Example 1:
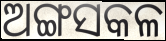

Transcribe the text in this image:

ଅଙ୍ଗସକଳ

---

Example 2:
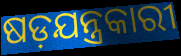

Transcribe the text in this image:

ଷଡ଼ଯନ୍ତ୍ରକାରୀ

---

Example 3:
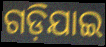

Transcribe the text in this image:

ଗଡ଼ିଯାଇ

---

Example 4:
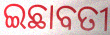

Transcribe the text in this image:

ଇଛାବତୀ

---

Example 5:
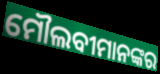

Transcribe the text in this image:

ମୌଲବୀମାନଙ୍କର